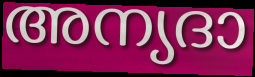
അന്യദാ